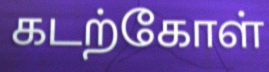
கடற்கோள்